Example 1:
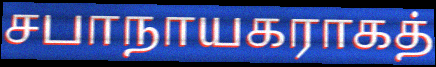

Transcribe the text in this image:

சபாநாயகராகத்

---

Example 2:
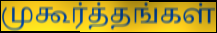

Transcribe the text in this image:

முகூர்த்தங்கள்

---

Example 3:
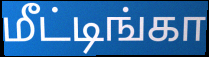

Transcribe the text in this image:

மீட்டிங்கா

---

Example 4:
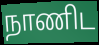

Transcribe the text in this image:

நாணிட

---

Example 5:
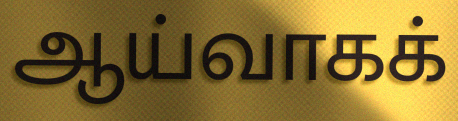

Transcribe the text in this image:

ஆய்வாகக்